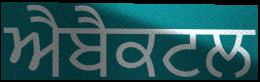
ਐਬੈਕਟਲ